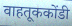
वाहतूककोंडी